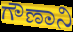
ಗೌಣಾನಿ